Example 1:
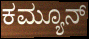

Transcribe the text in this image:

ಕಮ್ಯೂನ್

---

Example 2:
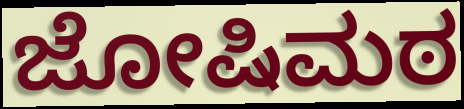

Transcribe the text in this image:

ಜೋಷಿಮಠ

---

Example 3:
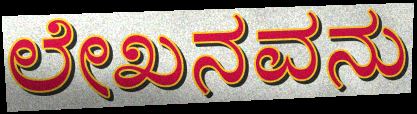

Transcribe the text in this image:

ಲೇಖನವನು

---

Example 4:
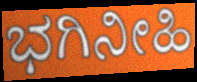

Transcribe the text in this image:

ಭಗಿನೀಹಿ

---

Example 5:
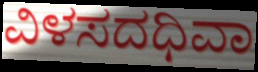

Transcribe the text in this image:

ವಿಳಸದಧಿವಾ